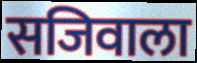
सजिवाला